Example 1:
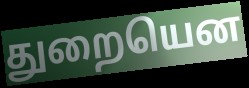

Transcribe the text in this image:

துறையென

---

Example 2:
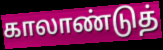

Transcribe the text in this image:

காலாண்டுத்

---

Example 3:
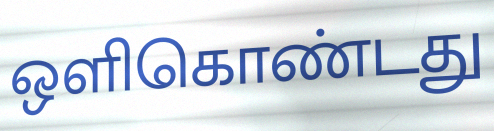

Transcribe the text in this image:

ஒளிகொண்டது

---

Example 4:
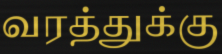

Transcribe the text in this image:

வரத்துக்கு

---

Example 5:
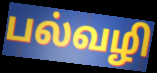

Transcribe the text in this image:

பல்வழி